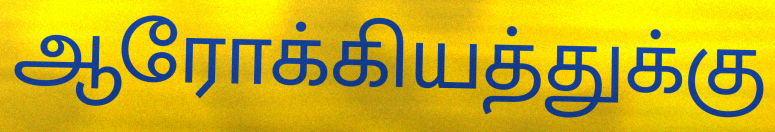
ஆரோக்கியத்துக்கு